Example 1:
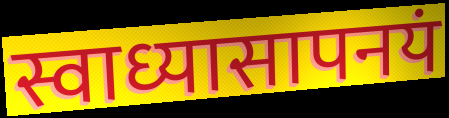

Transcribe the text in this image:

स्वाध्यासापनयं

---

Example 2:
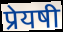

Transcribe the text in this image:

प्रेयषी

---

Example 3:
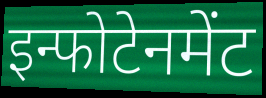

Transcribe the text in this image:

इन्फोटेनमेंट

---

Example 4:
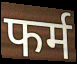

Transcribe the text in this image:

फर्म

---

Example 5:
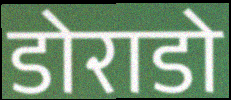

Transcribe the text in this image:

डोराडो